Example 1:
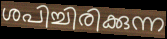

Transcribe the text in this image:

ശപിച്ചിരിക്കുന്ന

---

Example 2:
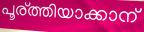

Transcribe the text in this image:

പൂര്ത്തിയാക്കാന്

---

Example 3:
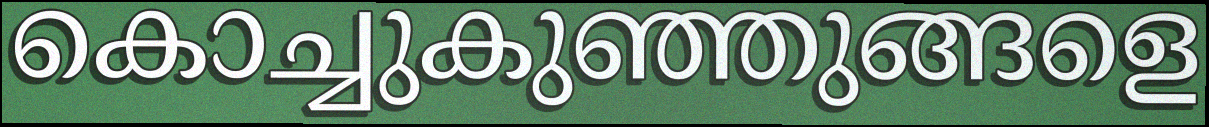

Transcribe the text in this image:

കൊച്ചുകുഞ്ഞുങ്ങളെ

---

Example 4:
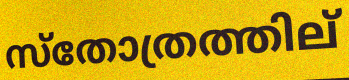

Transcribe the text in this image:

സ്തോത്രത്തില്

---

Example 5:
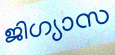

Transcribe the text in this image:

ജിഗ്യാസ